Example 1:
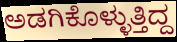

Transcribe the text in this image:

ಅಡಗಿಕೊಳ್ಳುತ್ತಿದ್ದ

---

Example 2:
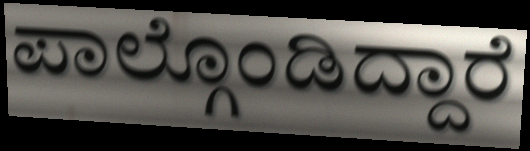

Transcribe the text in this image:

ಪಾಲ್ಗೊಂಡಿದ್ದಾರೆ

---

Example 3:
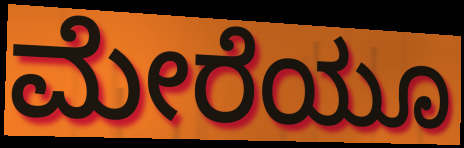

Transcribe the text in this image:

ಮೇರೆಯೂ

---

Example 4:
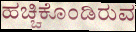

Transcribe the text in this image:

ಹಚ್ಚಿಕೊಂಡಿರುವ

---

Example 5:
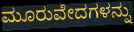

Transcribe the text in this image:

ಮೂರುವೇದಗಳನ್ನು